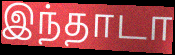
இந்தாடா